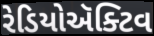
રેડિયોઍક્ટિવ